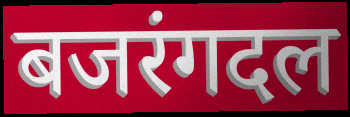
बजरंगदल